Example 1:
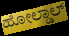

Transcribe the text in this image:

ಹೋಲ್ಡಾಲ್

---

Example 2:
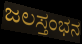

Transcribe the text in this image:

ಜಲಸ್ತಂಭನ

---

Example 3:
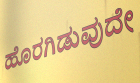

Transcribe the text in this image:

ಹೊರಗಿಡುವುದೇ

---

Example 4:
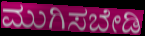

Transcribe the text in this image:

ಮುಗಿಸಬೇಡಿ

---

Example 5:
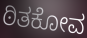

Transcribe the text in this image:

ಠಿತಕೋವ